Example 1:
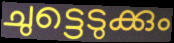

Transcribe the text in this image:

ചുട്ടെടുക്കും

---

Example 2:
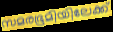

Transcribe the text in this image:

സമരഭൂമിയിലേക്ക്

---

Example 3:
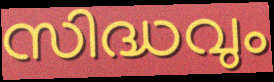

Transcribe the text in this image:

സിദ്ധവും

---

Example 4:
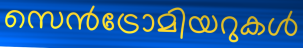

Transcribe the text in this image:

സെൻട്രോമിയറുകൾ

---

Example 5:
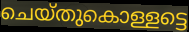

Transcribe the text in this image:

ചെയ്തുകൊള്ളട്ടെ